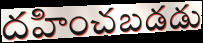
దహించబడడు